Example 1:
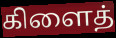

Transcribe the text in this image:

கிளைத்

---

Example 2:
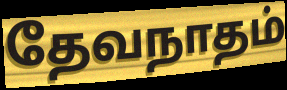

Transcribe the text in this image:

தேவநாதம்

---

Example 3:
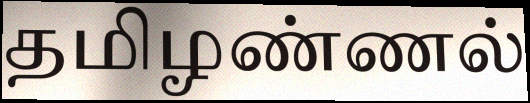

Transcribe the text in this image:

தமிழண்ணல்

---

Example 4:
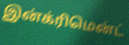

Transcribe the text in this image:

இன்க்ரிமென்ட்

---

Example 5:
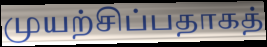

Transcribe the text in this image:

முயற்சிப்பதாகத்